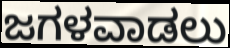
ಜಗಳವಾಡಲು